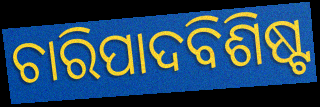
ଚାରିପାଦବିଶିଷ୍ଟ